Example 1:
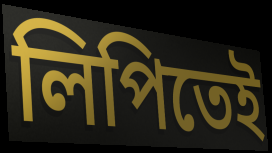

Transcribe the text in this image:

লিপিতেই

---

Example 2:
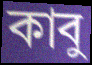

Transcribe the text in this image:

কাবু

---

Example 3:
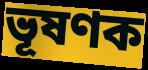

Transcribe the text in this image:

ভূষণক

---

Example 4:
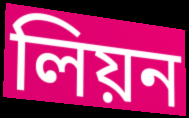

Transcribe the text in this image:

লিয়ন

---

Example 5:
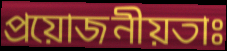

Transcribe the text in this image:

প্ৰয়োজনীয়তাঃ